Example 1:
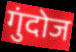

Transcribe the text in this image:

गुंदोज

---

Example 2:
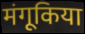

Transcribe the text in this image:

मंगूकिया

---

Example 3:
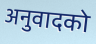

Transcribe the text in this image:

अनुवादको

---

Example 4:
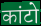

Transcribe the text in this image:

कांटो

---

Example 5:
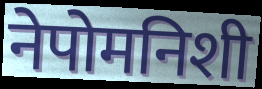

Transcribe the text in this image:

नेपोमनिशी